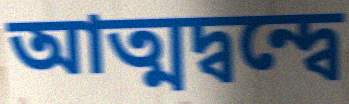
আত্মদ্বন্দ্বে